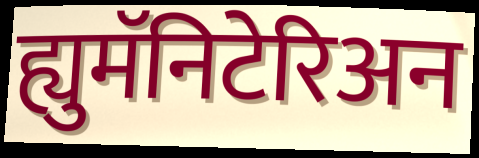
ह्युमॅनिटेरिअन